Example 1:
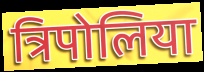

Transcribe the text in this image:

त्रिपोलिया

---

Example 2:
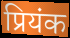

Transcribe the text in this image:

प्रियंक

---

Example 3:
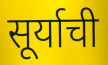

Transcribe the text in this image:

सूर्याची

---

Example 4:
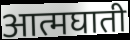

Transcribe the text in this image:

आत्मघाती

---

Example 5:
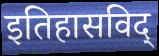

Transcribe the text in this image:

इतिहासविद्